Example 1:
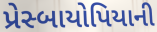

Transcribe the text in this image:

પ્રેસ્બાયોપિયાની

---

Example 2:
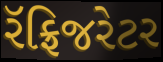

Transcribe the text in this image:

રૅફ્રિજરેટર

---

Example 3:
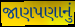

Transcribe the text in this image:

જાણપણાનું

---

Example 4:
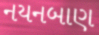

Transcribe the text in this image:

નયનબાણ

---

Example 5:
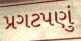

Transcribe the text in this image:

પ્રગટપણું